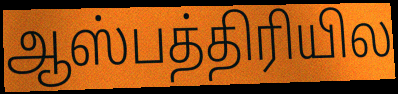
ஆஸ்பத்திரியில